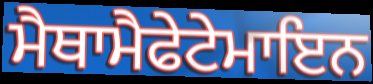
ਮੈਥਾਮੈਫੇਟੇਮਾਇਨ